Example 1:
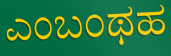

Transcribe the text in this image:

ಎಂಬಂಥಹ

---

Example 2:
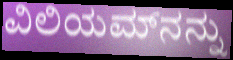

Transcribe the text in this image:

ವಿಲಿಯಮ್‌ನನ್ನು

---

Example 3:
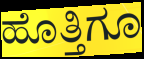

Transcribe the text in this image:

ಹೊತ್ತಿಗೂ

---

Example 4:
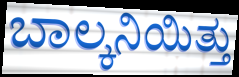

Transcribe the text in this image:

ಬಾಲ್ಕನಿಯಿತ್ತು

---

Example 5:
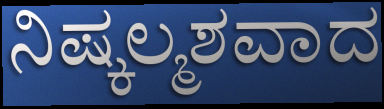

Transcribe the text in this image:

ನಿಷ್ಕಲ್ಮಶವಾದ